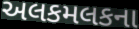
અલકમલકના